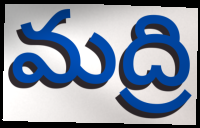
మద్రి